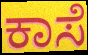
ಕಾಸೆ